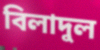
বিলাদুল